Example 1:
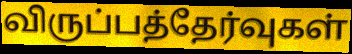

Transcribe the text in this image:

விருப்பத்தேர்வுகள்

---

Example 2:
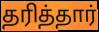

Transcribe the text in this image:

தரித்தார்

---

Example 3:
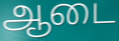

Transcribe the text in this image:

ஆடை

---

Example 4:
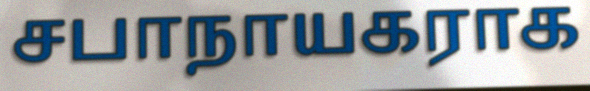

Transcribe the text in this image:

சபாநாயகராக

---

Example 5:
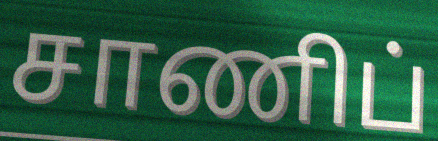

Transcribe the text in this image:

சாணிப்